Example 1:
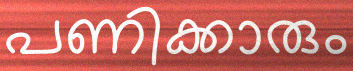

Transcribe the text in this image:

പണിക്കാരും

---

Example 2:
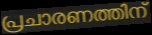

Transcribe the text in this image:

പ്രചാരണത്തിന്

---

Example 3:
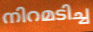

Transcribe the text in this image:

നിറമടിച്ച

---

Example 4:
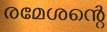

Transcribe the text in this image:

രമേശന്റെ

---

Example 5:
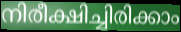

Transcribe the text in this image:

നിരീക്ഷിച്ചിരിക്കാം